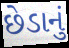
છેડાનું